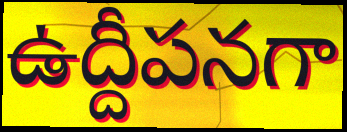
ఉద్దీపనగా